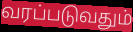
வரப்படுவதும்